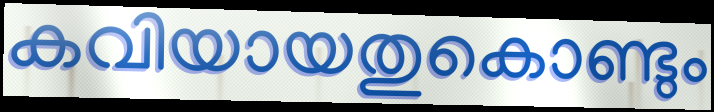
കവിയായതുകൊണ്ടും